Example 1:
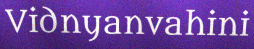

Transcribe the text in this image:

Vidnyanvahini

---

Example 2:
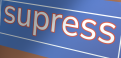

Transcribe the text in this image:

supress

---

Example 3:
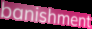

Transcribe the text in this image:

banishment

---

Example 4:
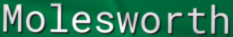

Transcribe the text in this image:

Molesworth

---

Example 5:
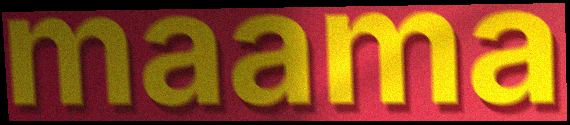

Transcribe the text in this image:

maama